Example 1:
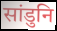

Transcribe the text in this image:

सांडुनि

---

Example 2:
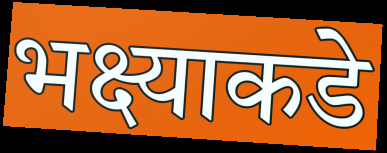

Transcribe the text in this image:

भक्ष्याकडे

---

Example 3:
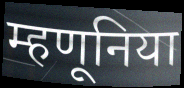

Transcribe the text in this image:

म्हणूनिया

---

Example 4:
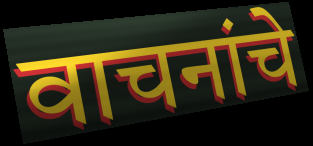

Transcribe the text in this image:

वाचनांचे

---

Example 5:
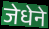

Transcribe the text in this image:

जेधेने